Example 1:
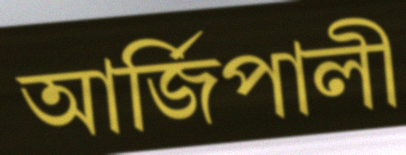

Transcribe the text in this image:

আৰ্জিপালী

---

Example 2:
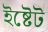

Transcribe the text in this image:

ইষ্টেট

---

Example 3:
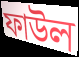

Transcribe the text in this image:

ফাউল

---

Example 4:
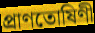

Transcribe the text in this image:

প্ৰাণতোষিণী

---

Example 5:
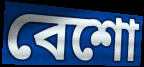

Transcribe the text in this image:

বেশো